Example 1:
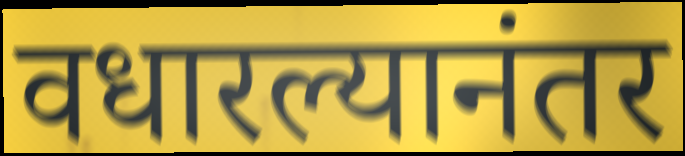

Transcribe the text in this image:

वधारल्यानंतर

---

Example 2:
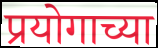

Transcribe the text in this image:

प्रयोगाच्या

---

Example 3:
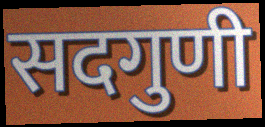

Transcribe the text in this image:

सदगुणी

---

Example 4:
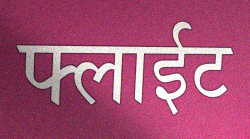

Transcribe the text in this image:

फ्लाईट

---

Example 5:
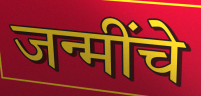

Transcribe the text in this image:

जन्मींचे